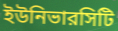
ইউনিভারসিটি